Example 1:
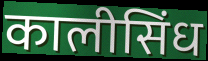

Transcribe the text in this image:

कालीसिंध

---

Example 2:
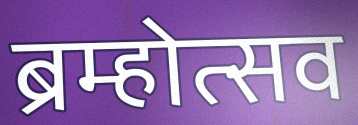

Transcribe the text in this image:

ब्रम्होत्सव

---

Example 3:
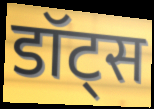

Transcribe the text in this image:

डॉट्स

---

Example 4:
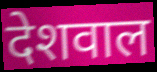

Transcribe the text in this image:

देशवाल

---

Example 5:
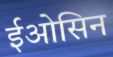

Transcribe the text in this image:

ईओसिन